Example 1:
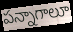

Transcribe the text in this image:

పన్నాగాలూ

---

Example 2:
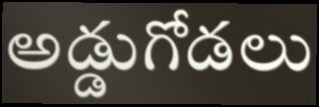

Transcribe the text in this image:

అడ్డుగోడలు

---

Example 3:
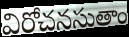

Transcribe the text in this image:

విరోచనసుతాం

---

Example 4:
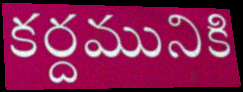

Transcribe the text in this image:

కర్దమునికి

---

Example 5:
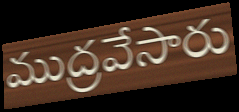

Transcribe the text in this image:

ముద్రవేసారు